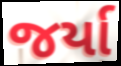
જર્યા